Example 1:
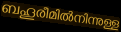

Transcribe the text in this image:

ബഹൂരീമിൽനിന്നുള്ള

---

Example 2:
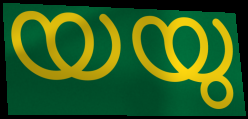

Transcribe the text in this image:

യയു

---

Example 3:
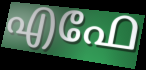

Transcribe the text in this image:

എഫേ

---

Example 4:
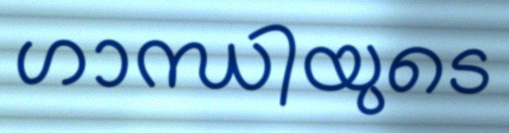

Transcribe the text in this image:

ഗാന്ധിയുടെ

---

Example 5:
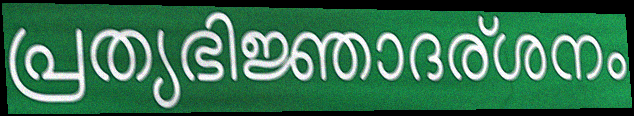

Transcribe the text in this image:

പ്രത്യഭിജ്ഞാദര്ശനം